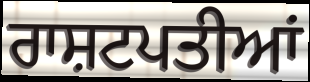
ਰਾਸ਼ਟਪਤੀਆਂ